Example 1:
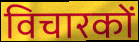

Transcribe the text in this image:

विचारकों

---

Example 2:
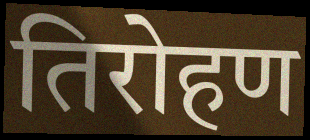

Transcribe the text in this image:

तिरोहण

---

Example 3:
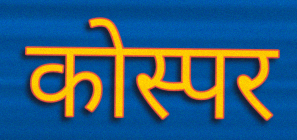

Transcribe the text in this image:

कोस्पर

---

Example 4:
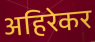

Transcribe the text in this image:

अहिरेकर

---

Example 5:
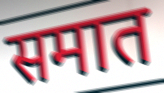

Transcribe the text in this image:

समात